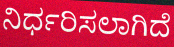
ನಿರ್ಧರಿಸಲಾಗಿದೆ